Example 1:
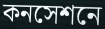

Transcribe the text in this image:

কনসেশনে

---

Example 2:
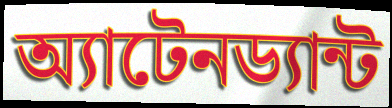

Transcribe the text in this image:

অ্যাটেনড্যান্ট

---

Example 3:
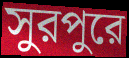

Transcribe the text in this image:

সুরপুরে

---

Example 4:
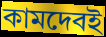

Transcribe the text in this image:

কামদেবই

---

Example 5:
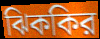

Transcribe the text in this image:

ঝিককির